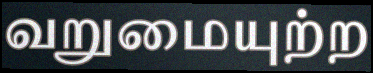
வறுமையுற்ற